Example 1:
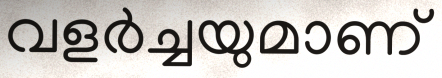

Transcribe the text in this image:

വളർച്ചയുമാണ്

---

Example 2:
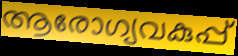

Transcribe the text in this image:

ആരോഗ്യവകുപ്പ്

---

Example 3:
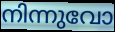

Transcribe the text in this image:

നിന്നുവോ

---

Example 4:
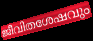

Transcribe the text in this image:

ജീവിതശേഷവും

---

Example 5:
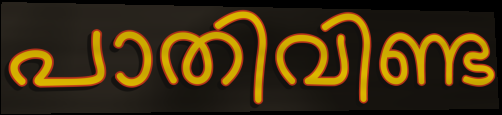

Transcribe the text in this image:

പാതിവിണ്ട